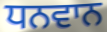
ਧਨਵਾਨ